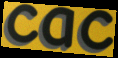
cac